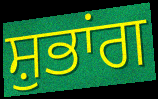
ਸ਼ੁਭਾਂਗ